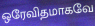
ஒரேவிதமாகவே